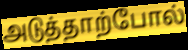
அடுத்தாற்போல்